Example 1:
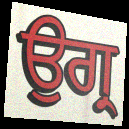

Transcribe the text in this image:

ਉਗ੍ਰ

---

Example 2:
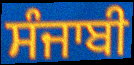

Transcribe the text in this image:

ਸੰਜਾਬੀ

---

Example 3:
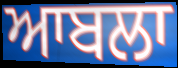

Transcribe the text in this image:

ਆਬਲਾ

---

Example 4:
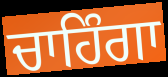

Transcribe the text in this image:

ਚਾਹਿੰਗਾ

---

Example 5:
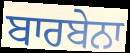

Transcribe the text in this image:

ਬਾਰਬੇਨਾ